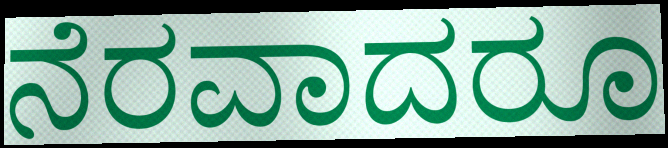
ನೆರವಾದರೂ